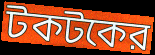
টকটকের